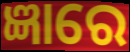
ଜ୍ଞାରେ